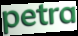
petra